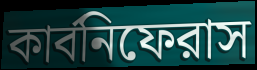
কার্বনিফেরাস